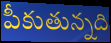
పీకుతున్నది